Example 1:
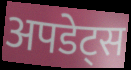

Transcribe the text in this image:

अपडेट्स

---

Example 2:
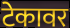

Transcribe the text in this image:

टेकावर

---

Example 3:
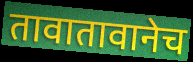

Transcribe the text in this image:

तावातावानेच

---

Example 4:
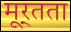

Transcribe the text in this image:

मूर्तता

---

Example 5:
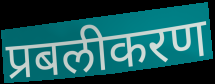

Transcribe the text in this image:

प्रबलीकरण